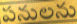
పనులను